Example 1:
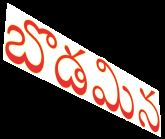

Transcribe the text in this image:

బొడమిన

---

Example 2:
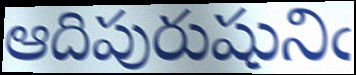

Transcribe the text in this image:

ఆదిపురుషునిఁ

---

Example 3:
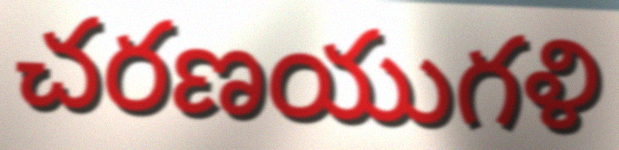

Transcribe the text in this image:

చరణయుగళి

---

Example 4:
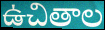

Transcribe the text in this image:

ఉచితాల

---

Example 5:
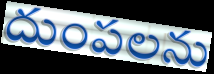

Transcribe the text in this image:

దుంపలను